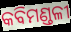
କବିମଣ୍ଡଳୀ